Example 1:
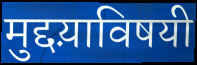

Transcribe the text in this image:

मुद्दय़ाविषयी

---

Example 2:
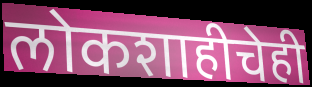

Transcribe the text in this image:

लोकशाहीचेही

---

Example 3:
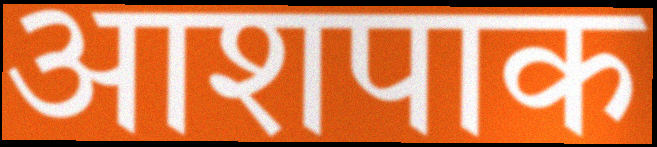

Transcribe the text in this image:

आशपाक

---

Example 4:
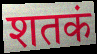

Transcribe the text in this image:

शतकं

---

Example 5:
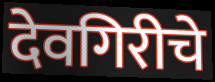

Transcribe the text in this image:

देवगिरीचे